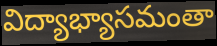
విద్యాభ్యాసమంతా